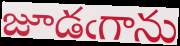
జూడఁగాను